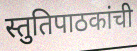
स्तुतिपाठकांची